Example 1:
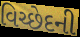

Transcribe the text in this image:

વિચ્છેદની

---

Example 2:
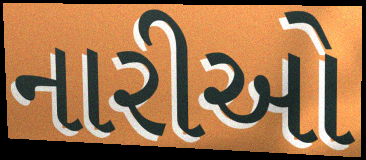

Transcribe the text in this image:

નારીઓ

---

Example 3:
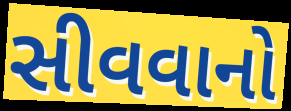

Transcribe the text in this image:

સીવવાનો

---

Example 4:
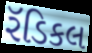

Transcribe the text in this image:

રૅડિકલ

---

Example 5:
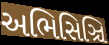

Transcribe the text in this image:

અભિસિઞ્ચિ